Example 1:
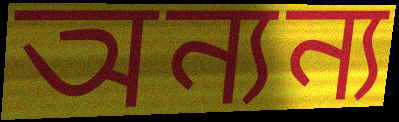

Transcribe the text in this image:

অন্যন্য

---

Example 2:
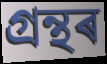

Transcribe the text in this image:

গ্ৰন্থৰ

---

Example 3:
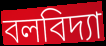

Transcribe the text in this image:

বলবিদ্যা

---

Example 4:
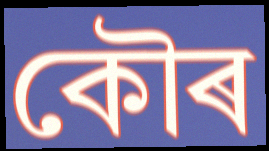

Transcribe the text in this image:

কৌৰ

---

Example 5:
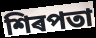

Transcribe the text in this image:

শিৰপতা